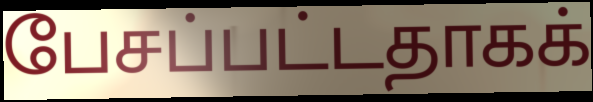
பேசப்பட்டதாகக்